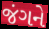
જંગને